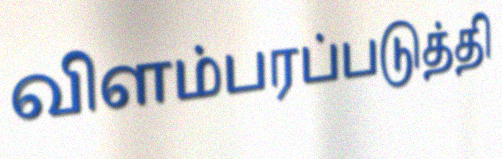
விளம்பரப்படுத்தி